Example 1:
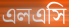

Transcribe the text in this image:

এলএসি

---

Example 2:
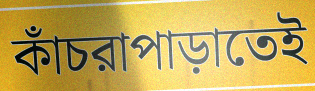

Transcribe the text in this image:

কাঁচরাপাড়াতেই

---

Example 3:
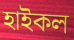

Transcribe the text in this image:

হাইকল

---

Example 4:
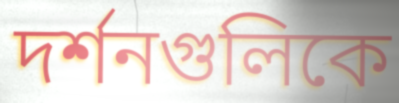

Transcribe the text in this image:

দর্শনগুলিকে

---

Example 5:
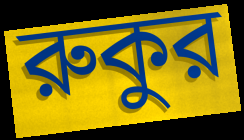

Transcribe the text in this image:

রুকুর